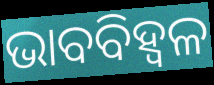
ଭାବବିହ୍ବଳ